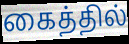
கைத்தில்